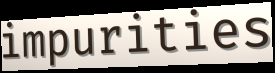
impurities